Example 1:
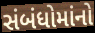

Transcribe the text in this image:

સંબંધોમાંનો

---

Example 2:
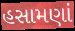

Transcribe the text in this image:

હસામણાં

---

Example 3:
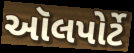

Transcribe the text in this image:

ઑલપોર્ટે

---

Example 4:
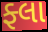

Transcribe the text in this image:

ફ્લા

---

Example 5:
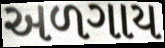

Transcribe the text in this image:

અળગાય